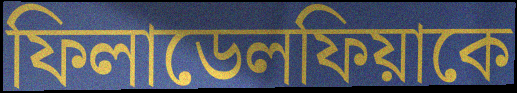
ফিলাডেলফিয়াকে